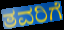
ತವರಿಗೆ